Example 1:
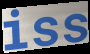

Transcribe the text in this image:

iss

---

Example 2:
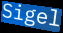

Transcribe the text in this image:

Sigel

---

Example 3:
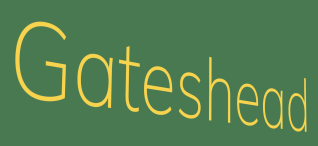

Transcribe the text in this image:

Gateshead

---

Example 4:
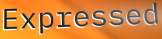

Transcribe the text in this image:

Expressed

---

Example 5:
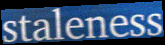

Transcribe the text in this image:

staleness